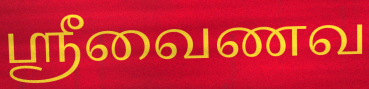
ஸ்ரீவைணவ